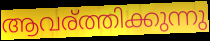
ആവര്ത്തിക്കുന്നു